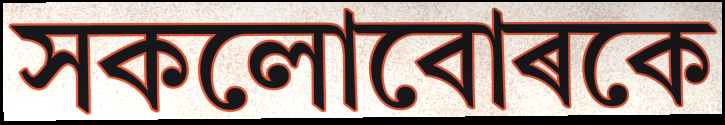
সকলোবোৰকে